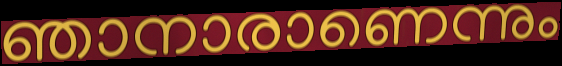
ഞാനാരാണെന്നും